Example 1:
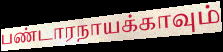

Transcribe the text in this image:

பண்டாரநாயக்காவும்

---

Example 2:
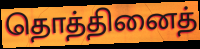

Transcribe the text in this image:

தொத்தினைத்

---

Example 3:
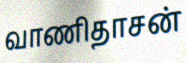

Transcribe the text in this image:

வாணிதாசன்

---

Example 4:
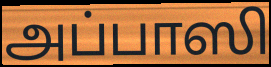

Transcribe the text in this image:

அப்பாஸி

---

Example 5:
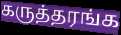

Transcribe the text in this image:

கருத்தரங்க